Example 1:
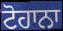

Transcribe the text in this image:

ਟੋਹਾਨਾ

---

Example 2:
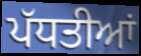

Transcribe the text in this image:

ਪੱਧਤੀਆਂ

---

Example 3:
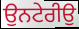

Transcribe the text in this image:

ਉਨਟੇਰੀਉ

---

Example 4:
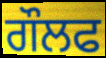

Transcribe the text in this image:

ਗੌਲਫ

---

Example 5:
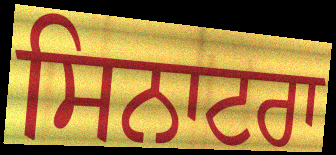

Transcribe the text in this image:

ਸਿਨਾਟਰਾ